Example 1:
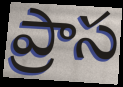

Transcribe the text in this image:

ప్రాస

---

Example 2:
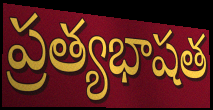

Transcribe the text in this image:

ప్రత్యభాషత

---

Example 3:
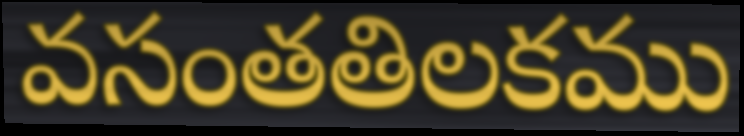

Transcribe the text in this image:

వసంతతిలకము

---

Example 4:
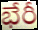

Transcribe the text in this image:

భేరీ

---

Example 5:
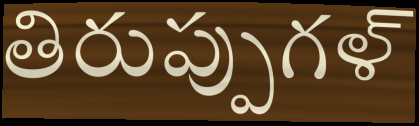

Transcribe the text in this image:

తిరుప్పుగళ్